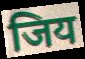
जिय